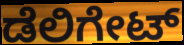
ಡೆಲಿಗೇಟ್